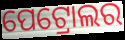
ପେଟ୍ରୋଲର